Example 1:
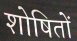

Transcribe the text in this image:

शोषितों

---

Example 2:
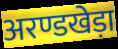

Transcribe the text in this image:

अरण्डखेड़ा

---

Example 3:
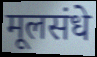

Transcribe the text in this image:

मूलसंधे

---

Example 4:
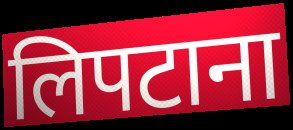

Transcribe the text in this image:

लिपटाना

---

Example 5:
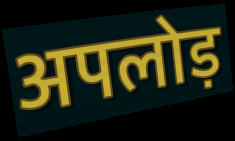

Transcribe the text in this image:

अपलोड़